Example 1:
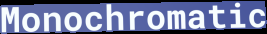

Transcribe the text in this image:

Monochromatic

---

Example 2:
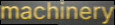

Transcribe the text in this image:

machinery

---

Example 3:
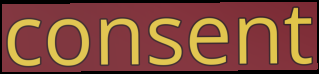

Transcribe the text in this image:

consent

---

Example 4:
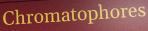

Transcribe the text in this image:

Chromatophores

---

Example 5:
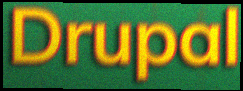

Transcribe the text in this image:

Drupal